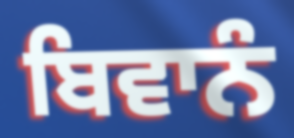
ਬਿਵਾਨੰ